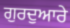
ਗੁਰਦੁਆਰੇ